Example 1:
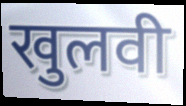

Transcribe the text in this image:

खुलवी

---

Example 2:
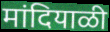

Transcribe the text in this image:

मांदियाळी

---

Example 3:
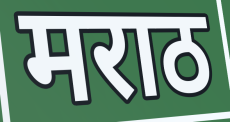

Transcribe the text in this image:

मराठ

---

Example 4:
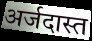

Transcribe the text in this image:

अर्जदास्त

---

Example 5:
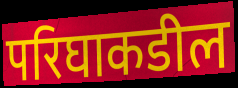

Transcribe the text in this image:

परिघाकडील